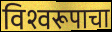
विश्वरूपाचा